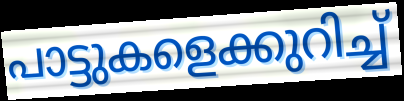
പാട്ടുകളെക്കുറിച്ച്